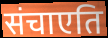
संचाएति